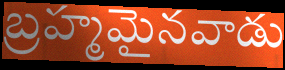
బ్రహ్మమైనవాడు